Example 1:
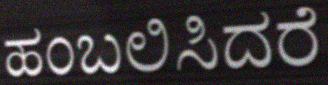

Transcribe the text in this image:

ಹಂಬಲಿಸಿದರೆ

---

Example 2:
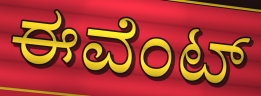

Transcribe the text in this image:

ಈವೆಂಟ್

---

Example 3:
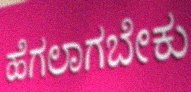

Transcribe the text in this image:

ಹೆಗಲಾಗಬೇಕು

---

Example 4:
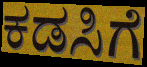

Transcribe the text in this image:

ಕಡಸಿಗೆ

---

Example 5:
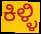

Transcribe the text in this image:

ಕಿಳ್ಳಿ